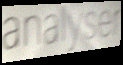
analyser